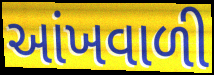
આંખવાળી